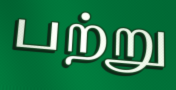
பற்று